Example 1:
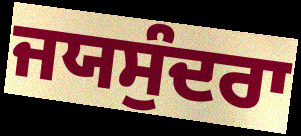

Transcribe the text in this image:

ਜਯਸੁੰਦਰਾ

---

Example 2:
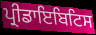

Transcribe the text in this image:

ਪ੍ਰੀਡਾਇਬਿਟਿਸ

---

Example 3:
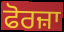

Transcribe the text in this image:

ਫੋਰਜ਼ਾ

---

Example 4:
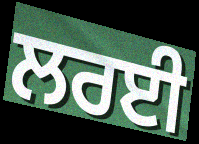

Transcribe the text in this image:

ਲਰਈ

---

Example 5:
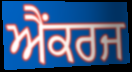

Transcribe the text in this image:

ਐਂਕਰਜ